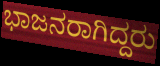
ಭಾಜನರಾಗಿದ್ದರು